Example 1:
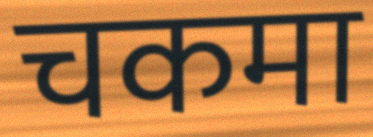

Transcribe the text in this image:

चकमा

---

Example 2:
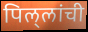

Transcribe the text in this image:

पिल्लांची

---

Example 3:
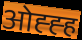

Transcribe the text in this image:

ओह्ह्ह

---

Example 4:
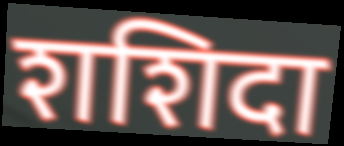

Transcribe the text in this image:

शशिदा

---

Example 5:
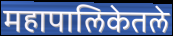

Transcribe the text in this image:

महापालिकेतले